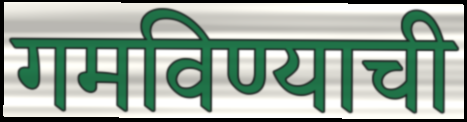
गमविण्याची